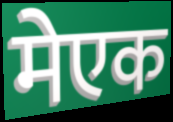
मेएक